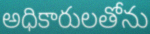
అధికారులతోను